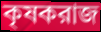
কৃষকরাজ